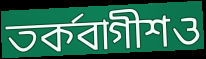
তর্কবাগীশও